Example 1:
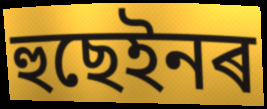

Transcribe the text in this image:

হুছেইনৰ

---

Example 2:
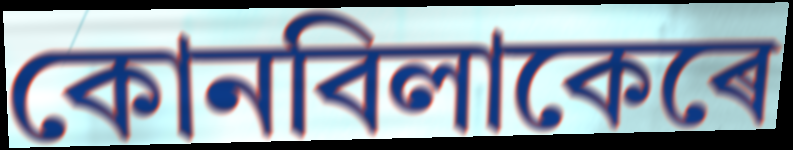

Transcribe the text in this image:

কোনবিলাকেৰে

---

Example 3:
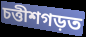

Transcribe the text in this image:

চত্তীশগড়ত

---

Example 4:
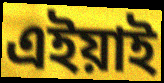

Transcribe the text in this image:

এইয়াই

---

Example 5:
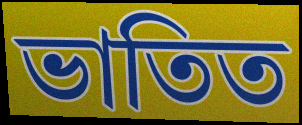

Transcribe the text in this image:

ভাতিত